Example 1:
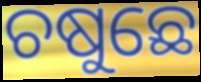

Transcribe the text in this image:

ଚଷୁଛେ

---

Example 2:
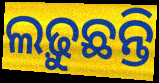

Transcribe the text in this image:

ଲଢ଼ୁଛନ୍ତି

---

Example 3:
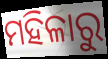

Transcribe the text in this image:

ମହିଳାରୁ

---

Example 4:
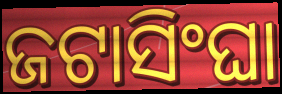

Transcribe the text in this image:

ଜଟାସିଂଘା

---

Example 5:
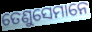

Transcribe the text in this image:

ତେଣୁସେମାନେ